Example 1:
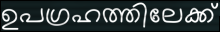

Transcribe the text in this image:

ഉപഗ്രഹത്തിലേക്ക്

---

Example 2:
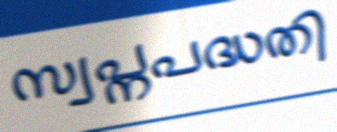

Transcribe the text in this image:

സ്വപ്നപദ്ധതി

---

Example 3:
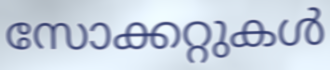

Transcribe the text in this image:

സോക്കറ്റുകൾ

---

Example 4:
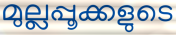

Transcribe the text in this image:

മുല്ലപ്പൂക്കളുടെ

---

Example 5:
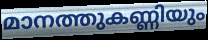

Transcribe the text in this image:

മാനത്തുകണ്ണിയും